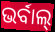
ଭର୍ବାଲ୍